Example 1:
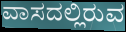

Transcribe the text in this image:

ವಾಸದಲ್ಲಿರುವ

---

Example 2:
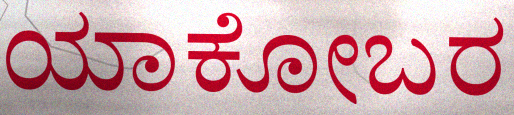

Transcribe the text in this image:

ಯಾಕೋಬರ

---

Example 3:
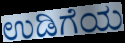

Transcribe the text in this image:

ಉಡಿಗೆಯ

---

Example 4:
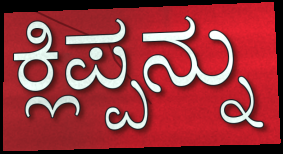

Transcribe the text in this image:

ಕ್ಲಿಪ್ಪನ್ನು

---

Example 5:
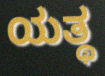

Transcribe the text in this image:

ಯತ್ಥ